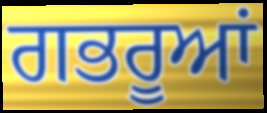
ਗਭਰੂਆਂ